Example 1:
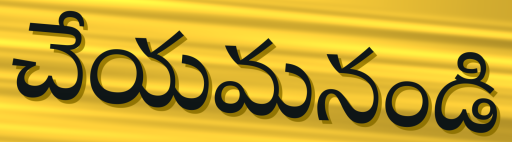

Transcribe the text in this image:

చేయమనండి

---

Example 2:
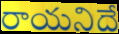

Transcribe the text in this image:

రాయనిదే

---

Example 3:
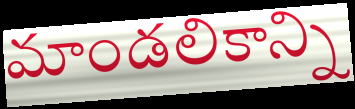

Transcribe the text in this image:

మాండలికాన్ని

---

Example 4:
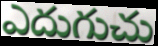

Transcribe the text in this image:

ఎదుగుచు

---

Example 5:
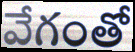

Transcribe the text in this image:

వేగంతో